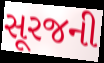
સૂરજની